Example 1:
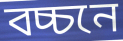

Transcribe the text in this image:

বচ্চনে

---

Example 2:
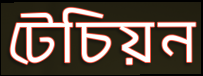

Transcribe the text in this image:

টেচিয়ন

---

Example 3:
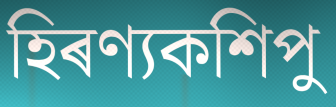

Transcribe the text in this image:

হিৰণ্যকশিপু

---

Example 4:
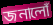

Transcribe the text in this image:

জনালোঁ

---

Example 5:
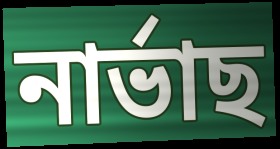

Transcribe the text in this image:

নাৰ্ভাছ